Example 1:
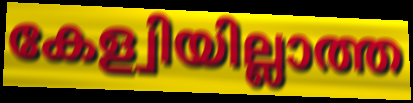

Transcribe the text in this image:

കേള്വിയില്ലാത്ത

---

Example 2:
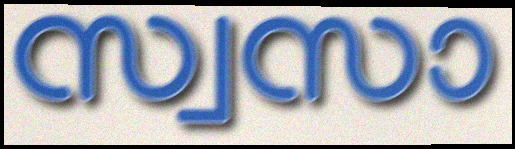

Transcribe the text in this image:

സ്വസാ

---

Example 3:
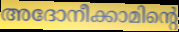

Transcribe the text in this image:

അദോനീക്കാമിന്റെ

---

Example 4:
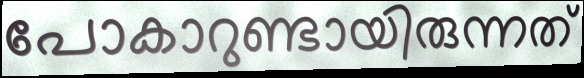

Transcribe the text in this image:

പോകാറുണ്ടായിരുന്നത്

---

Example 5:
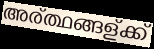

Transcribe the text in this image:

അര്ത്ഥങ്ങള്ക്ക്